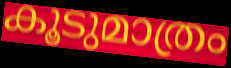
കൂടുമാത്രം